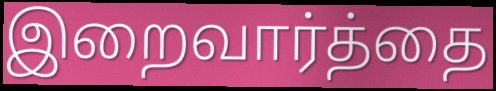
இறைவார்த்தை